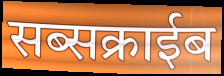
सब्सक्राईब